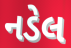
નડેલ